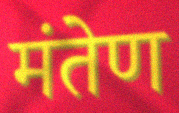
मंतेण